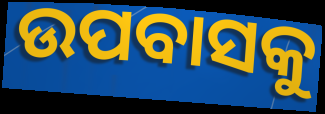
ଉପବାସକୁ